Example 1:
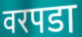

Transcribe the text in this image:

वरपडा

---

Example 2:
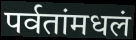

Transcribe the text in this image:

पर्वतांमधलं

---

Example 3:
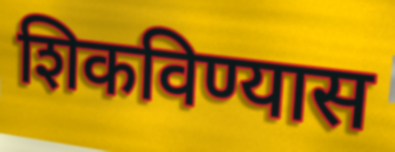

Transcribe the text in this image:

शिकविण्यास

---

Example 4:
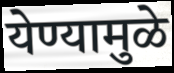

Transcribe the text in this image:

येण्यामुळे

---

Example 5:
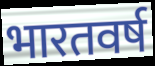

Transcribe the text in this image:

भारतवर्ष